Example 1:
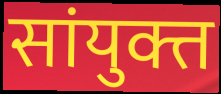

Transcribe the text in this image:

सांयुक्त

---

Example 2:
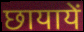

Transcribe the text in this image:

छायायें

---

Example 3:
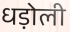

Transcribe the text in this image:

धड़ोली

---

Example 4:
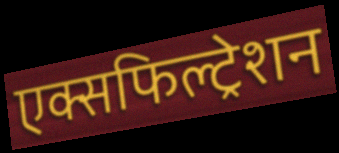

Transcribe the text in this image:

एक्सफिल्ट्रेशन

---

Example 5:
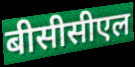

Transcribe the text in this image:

बीसीसीएल